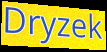
Dryzek